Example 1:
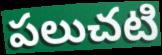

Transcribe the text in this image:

పలుచటి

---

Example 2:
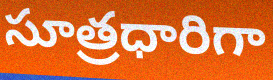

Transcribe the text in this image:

సూత్రధారిగా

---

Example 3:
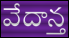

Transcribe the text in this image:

వేదాన్త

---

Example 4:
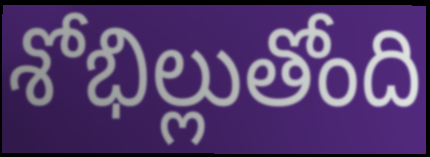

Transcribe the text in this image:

శోభిల్లుతోంది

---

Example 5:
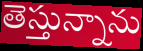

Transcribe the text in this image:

తెస్తున్నాను